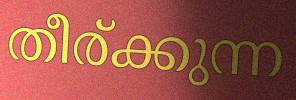
തീര്ക്കുന്ന